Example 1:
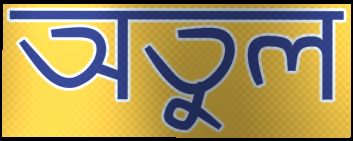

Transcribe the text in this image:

অতুল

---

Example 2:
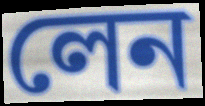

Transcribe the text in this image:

লেন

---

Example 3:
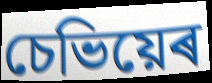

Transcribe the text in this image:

চেভিয়েৰ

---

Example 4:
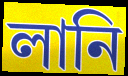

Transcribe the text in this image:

লানি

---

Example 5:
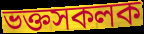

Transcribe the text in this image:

ভক্তসকলক